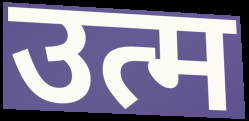
उत्म